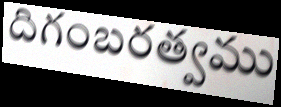
దిగంబరత్వము